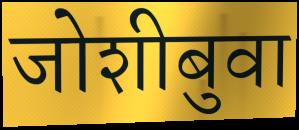
जोशीबुवा